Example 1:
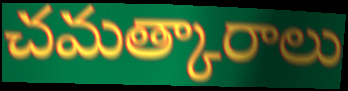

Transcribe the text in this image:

చమత్కారాలు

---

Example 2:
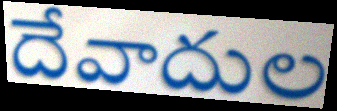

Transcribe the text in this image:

దేవాదుల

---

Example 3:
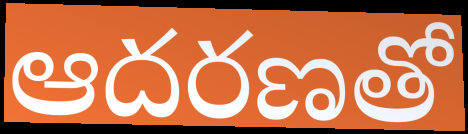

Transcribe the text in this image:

ఆదరణతో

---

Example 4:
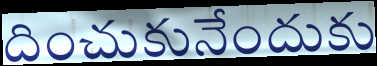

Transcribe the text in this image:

దించుకునేందుకు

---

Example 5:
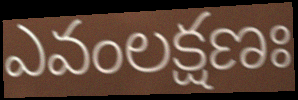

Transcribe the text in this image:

ఎవంలక్షణః